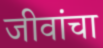
जीवांचा